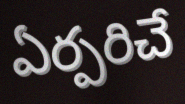
ఏర్పరిచే